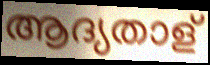
ആദ്യതാള്